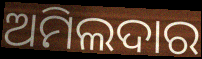
ଅମିଲଦାର